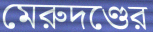
মেরুদণ্ডের